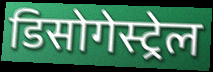
डिसोगेस्ट्रेल